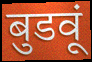
बुडवूं